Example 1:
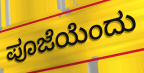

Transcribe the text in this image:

ಪೂಜೆಯೆಂದು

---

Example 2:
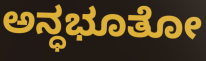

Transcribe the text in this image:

ಅನ್ಧಭೂತೋ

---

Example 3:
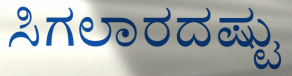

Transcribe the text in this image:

ಸಿಗಲಾರದಷ್ಟು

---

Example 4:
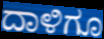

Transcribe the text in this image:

ದಾಳಿಗೂ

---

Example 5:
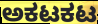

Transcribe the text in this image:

ಅಕಟಕಟ